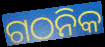
ଗଠନିକ